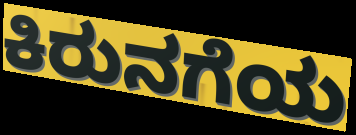
ಕಿರುನಗೆಯ